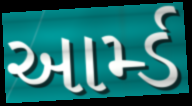
આર્મ્ડ